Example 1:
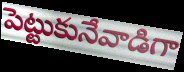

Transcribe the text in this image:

పెట్టుకునేవాడిగా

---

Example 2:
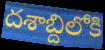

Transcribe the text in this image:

దశాబ్దిలోకి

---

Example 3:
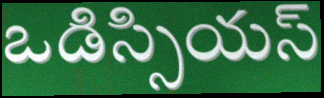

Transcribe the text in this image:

ఒడిస్సియస్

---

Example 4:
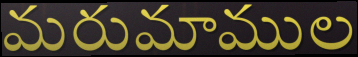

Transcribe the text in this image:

మరుమాముల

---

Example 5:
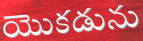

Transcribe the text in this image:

యొకడును